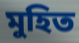
মুহিত